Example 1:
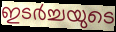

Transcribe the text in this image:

ഇടർച്ചയുടെ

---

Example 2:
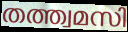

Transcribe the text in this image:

തത്ത്വമസി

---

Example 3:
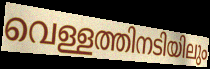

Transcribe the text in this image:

വെള്ളത്തിനടിയിലും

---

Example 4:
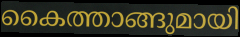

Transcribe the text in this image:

കൈത്താങ്ങുമായി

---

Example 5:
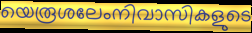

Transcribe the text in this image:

യെരൂശലേംനിവാസികളുടെ